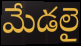
మేడలై